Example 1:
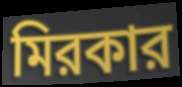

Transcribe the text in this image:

মিরকার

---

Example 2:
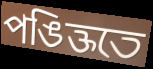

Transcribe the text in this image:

পঙিক্ততে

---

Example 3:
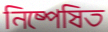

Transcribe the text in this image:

নিষ্পেষিত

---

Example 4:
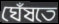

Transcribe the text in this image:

ঘেঁষতে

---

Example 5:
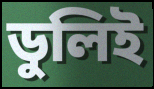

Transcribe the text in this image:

ডুলিই